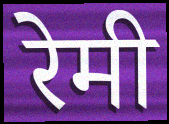
रेमी